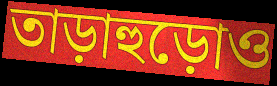
তাড়াহুড়োও